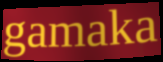
gamaka